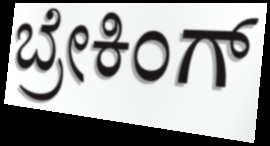
ಬ್ರೇಕಿಂಗ್